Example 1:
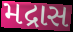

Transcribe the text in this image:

મદ્રાસ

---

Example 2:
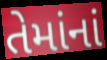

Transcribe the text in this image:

તેમાંનાં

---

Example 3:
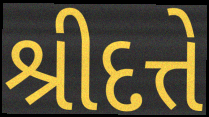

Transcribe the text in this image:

શ્રીદત્તે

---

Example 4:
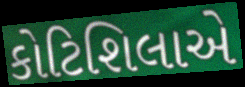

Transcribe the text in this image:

કોટિશિલાએ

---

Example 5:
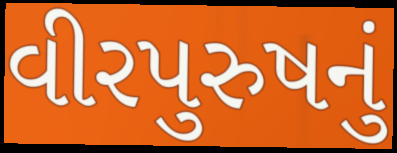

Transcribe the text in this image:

વીરપુરુષનું